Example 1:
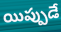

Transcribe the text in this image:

యిప్పుడే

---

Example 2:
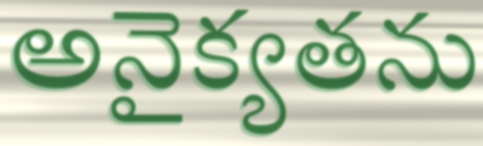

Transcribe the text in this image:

అనైక్యతను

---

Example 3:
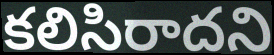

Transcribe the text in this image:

కలిసిరాదని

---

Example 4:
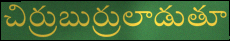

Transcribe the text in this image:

చిర్రుబుర్రులాడుతూ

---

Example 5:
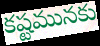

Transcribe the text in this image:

కష్టమునకు